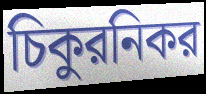
চিকুরনিকর